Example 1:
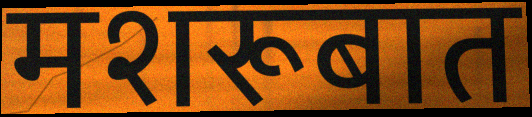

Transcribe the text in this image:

मशरूबात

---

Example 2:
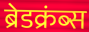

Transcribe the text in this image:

ब्रेडक्रंब्स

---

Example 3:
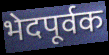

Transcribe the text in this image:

भेदपूर्वक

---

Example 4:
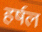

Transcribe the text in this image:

हर्षल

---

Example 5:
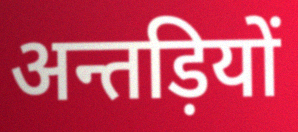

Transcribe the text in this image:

अन्तड़ियों